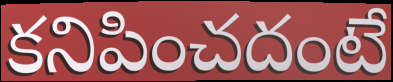
కనిపించదంటే